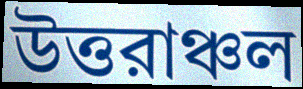
উত্তরাঞ্চল